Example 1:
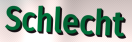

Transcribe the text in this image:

Schlecht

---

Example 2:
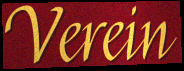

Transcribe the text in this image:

Verein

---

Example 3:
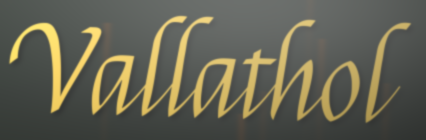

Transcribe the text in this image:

Vallathol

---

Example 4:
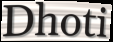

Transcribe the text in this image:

Dhoti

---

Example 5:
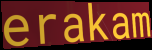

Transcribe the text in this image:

erakam